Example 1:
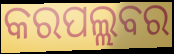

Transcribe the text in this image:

କରପଲ୍ଲବର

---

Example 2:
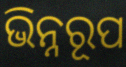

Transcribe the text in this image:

ଭିନ୍ନରୂପ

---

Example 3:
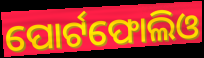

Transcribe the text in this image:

ପୋର୍ଟଫୋଲିଓ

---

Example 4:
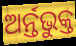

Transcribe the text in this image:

ଅର୍ନ୍ତଭୁକ୍ତ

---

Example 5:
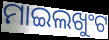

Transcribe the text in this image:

ମାଇଲଖୁଂଟ